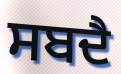
ਸਬਦੈ